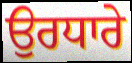
ਉਰਧਾਰੇ